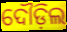
ଦୌଡ଼ିଲ